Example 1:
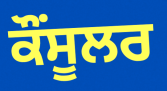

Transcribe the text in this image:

ਕੌਂਸੂਲਰ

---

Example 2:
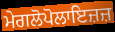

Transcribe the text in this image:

ਮੇਗਲੋਪੋਲਾਇਜ਼ਜ਼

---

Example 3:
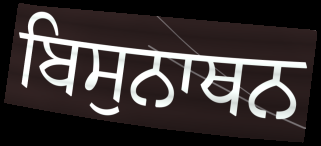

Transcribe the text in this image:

ਬਿਸੁਨਾਥਨ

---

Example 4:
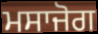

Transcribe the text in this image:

ਮਸਾਜੋਗ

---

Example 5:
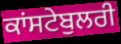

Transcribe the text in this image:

ਕਾਂਸਟੇਬੁਲਰੀ